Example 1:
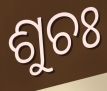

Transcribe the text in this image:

ଶୁଚଃ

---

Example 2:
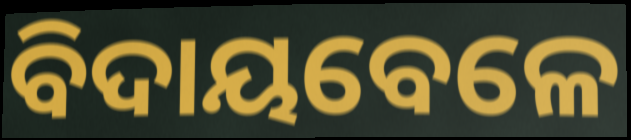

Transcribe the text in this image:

ବିଦାୟବେଳେ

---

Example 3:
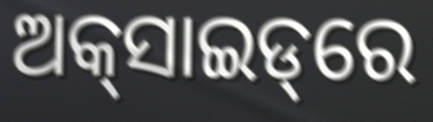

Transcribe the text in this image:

ଅକ୍‌ସାଇଡ୍‌ରେ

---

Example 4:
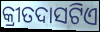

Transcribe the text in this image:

କ୍ରୀତଦାସଟିଏ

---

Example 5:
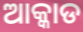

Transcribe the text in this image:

ଆକ୍କାଡ